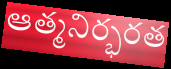
ఆత్మనిర్భరత